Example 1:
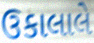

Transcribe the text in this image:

ઉકાલાલે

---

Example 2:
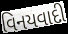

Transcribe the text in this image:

વિનયવાદી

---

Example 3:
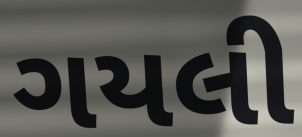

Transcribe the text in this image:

ગયલી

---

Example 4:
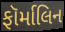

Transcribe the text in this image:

ફૉર્માલિન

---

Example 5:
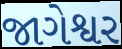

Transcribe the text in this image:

જાગેશ્વર